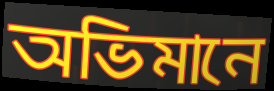
অভিমানে